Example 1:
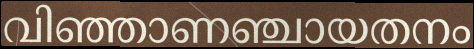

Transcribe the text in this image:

വിഞ്ഞാണഞ്ചായതനം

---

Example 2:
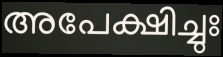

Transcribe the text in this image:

അപേക്ഷിച്ചുഃ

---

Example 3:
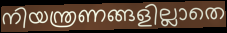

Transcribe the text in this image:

നിയന്ത്രണങ്ങളില്ലാതെ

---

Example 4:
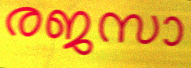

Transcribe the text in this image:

രജസാ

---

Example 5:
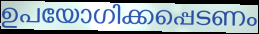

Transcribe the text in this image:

ഉപയോഗിക്കപ്പെടണം